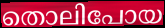
തൊലിപോയ